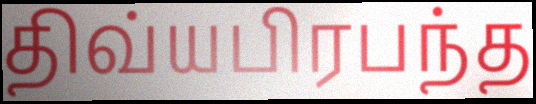
திவ்யபிரபந்த